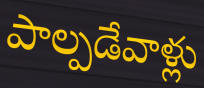
పాల్పడేవాళ్లు